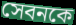
সেবনকে